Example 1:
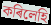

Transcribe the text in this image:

কৰিলেহি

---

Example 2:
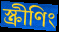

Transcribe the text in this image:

স্ক্ৰীণিং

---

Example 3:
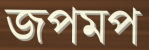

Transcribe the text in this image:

জপমপ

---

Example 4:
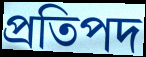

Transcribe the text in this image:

প্ৰতিপদ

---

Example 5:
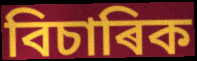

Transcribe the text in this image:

বিচাৰিক